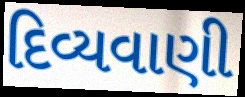
દિવ્યવાણી